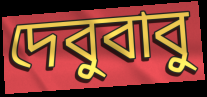
দেবুবাবু